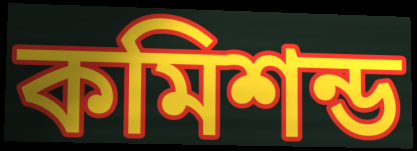
কমিশন্ড